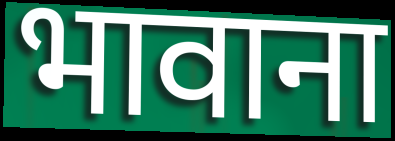
भावाना